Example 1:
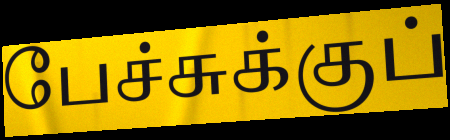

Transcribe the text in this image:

பேச்சுக்குப்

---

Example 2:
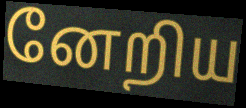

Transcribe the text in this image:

னேறிய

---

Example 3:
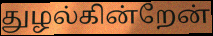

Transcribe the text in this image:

துழல்கின்றேன்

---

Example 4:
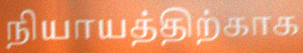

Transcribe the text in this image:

நியாயத்திற்காக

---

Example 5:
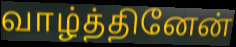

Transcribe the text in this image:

வாழ்த்தினேன்